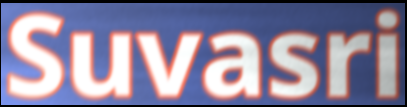
Suvasri